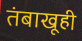
तंबाखूही